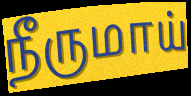
நீருமாய்